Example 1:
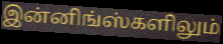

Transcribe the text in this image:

இன்னிங்ஸ்களிலும்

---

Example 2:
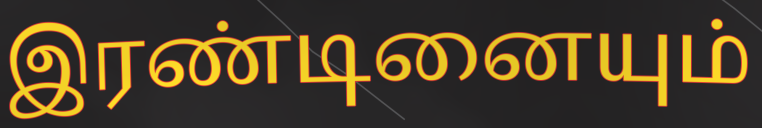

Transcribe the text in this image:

இரண்டினையும்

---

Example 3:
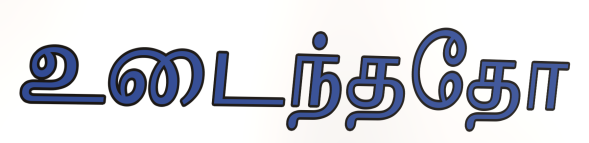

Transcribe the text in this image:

உடைந்ததோ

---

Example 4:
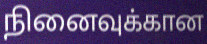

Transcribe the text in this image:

நினைவுக்கான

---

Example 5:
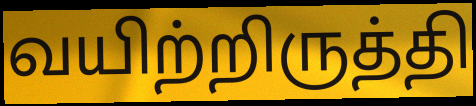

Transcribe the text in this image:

வயிற்றிருத்தி